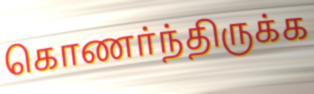
கொணர்ந்திருக்க